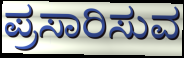
ಪ್ರಸಾರಿಸುವ